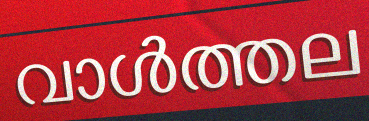
വാൾത്തല